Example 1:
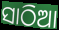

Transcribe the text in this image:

ସାଠିଆ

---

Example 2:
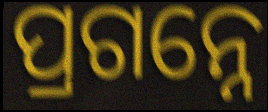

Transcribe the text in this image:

ପ୍ରଗନ୍ନେ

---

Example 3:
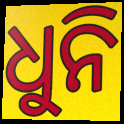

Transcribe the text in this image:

ଧୁନି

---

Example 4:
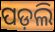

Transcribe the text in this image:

ପଡ଼ଲି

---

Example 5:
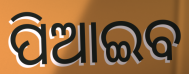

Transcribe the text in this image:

ପିଆଇବ